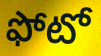
ఫోటో